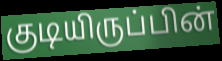
குடியிருப்பின்